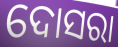
ଦୋସରା